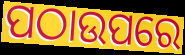
ପଠାଉପରେ